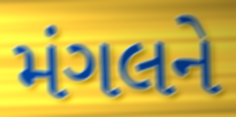
મંગલને